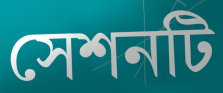
সেশনটি